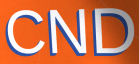
CND